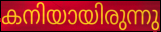
കനിയായിരുന്നു